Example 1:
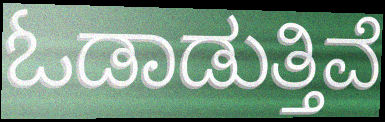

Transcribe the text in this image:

ಓಡಾಡುತ್ತಿವೆ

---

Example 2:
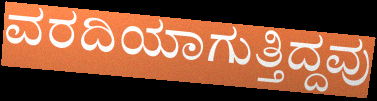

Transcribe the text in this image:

ವರದಿಯಾಗುತ್ತಿದ್ದವು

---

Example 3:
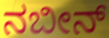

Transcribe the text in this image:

ನಬೀನ್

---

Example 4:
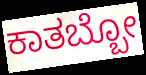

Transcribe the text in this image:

ಕಾತಬ್ಬೋ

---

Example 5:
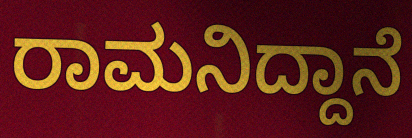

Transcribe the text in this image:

ರಾಮನಿದ್ದಾನೆ